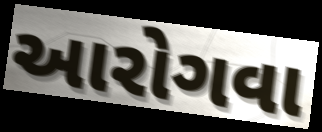
આરોગવા